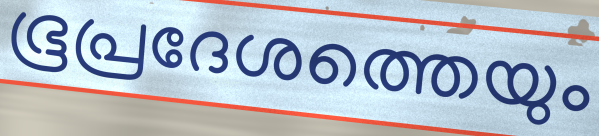
ഭൂപ്രദേശത്തെയും